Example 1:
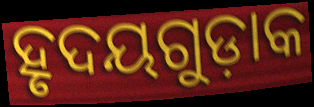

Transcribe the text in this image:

ହୃଦୟଗୁଡ଼ାକ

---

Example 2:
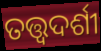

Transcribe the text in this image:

ତତ୍ତ୍ଵଦର୍ଶୀ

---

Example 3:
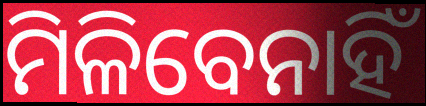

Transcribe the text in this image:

ମିଳିବେନାହିଁ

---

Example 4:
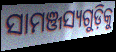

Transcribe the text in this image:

ସାମଞ୍ଜସ୍ୟଗୁଡ଼ିକୁ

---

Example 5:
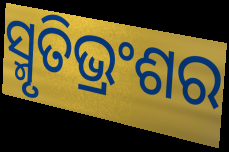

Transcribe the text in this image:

ସ୍ମୃତିଭ୍ରଂଶର